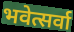
भवेत्सर्वा